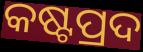
କଷ୍ଟପ୍ରଦ